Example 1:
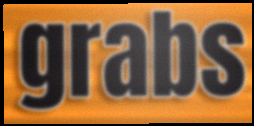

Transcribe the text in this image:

grabs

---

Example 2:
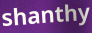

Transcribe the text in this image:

shanthy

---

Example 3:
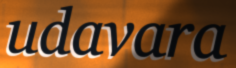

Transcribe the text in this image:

udavara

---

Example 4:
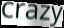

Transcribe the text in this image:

crazy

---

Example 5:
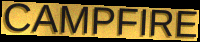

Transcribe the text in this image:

CAMPFIRE